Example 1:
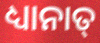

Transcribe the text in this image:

ଧ୍ୟାନାତ୍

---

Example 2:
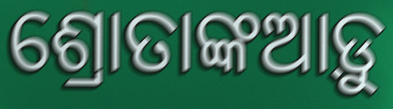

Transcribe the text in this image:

ଶ୍ରୋତାଙ୍କଆଡ଼ୁ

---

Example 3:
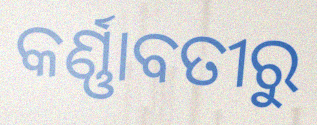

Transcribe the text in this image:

କର୍ଣ୍ଣାବତୀରୁ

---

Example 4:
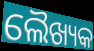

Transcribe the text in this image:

ଲୈଖ୍ୟକ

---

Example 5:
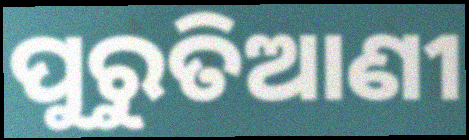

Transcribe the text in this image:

ପୁରୁତିଆଣୀ